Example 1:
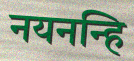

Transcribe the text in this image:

नयनन्हि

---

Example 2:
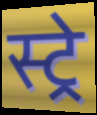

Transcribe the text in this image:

स्ट्रे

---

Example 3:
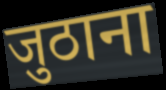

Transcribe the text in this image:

जुठाना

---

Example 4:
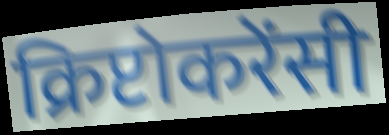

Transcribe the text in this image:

क्रिप्टोकरेंसी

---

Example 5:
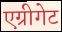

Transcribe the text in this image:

एग्रीगेट